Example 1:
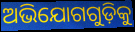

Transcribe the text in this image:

ଅଭିଯୋଗଗୁଡ଼ିକୁ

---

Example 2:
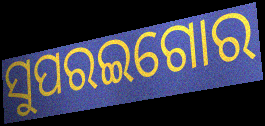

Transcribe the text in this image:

ସୁପରଇଗୋର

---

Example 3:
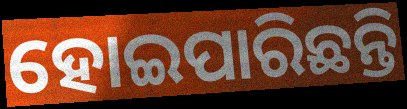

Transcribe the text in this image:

ହୋଇପାରିଛନ୍ତି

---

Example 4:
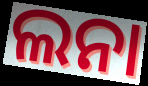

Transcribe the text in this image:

ଲନା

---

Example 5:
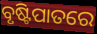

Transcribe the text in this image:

ବୃଷ୍ଟିପାତରେ